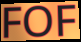
FOF